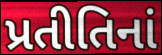
પ્રતીતિનાં